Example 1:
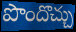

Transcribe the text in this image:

పొందొచ్చు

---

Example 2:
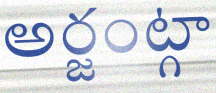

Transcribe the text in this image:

అర్జంట్గా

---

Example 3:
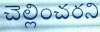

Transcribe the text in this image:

చెల్లించరని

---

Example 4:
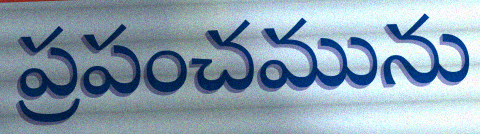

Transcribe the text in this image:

ప్రపంచమును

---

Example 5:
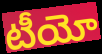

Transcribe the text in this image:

టీయో